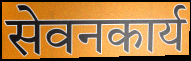
सेवनकार्य